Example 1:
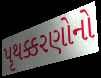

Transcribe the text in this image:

પૃથક્કરણોનો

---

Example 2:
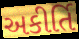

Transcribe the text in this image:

અકીર્તિ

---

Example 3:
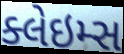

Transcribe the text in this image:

ક્લેઇમ્સ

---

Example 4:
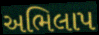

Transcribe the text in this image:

અભિલાપ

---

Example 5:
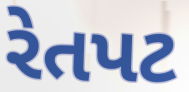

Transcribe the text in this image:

રેતપટ